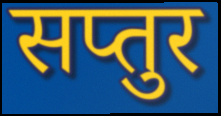
सप्तुर